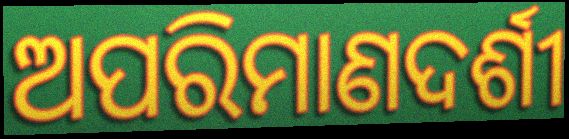
ଅପରିମାଣଦର୍ଶୀ